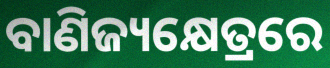
ବାଣିଜ୍ୟକ୍ଷେତ୍ରରେ